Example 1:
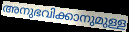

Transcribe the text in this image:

അനുഭവിക്കാനുമുള്ള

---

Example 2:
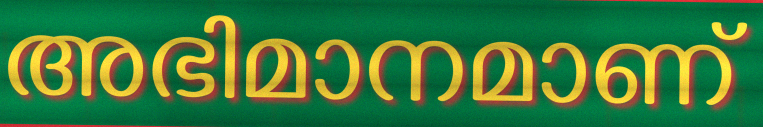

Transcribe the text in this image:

അഭിമാനമാണ്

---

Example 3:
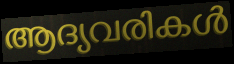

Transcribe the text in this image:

ആദ്യവരികൾ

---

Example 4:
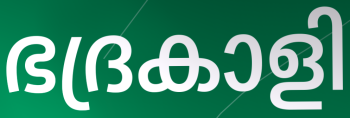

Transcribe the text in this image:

ഭദ്രകാളി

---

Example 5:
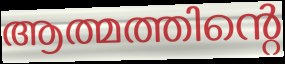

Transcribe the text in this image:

ആത്മത്തിന്റെ